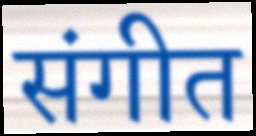
संगीत